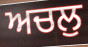
ਅਚਲੁ